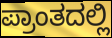
ಪ್ರಾಂತದಲ್ಲಿ